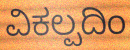
ವಿಕಲ್ಪದಿಂ